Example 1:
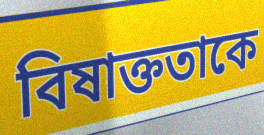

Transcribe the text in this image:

বিষাক্ততাকে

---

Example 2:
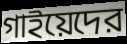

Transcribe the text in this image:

গাইয়েদের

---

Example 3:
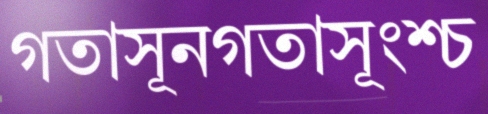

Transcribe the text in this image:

গতাসূনগতাসূংশ্চ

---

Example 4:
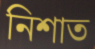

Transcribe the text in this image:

নিশাত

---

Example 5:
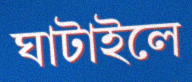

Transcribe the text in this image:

ঘাটাইলে